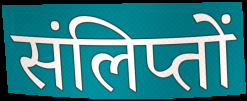
संलिप्तों